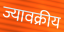
ज्यावक्रीय